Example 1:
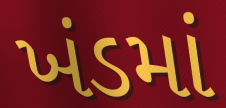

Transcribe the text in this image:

ખંડમાં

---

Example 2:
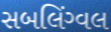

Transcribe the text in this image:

સબલિંગ્વલ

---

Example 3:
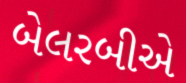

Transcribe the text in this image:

બેલરબીએ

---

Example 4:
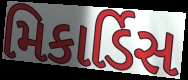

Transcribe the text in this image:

મિકાર્ડિસ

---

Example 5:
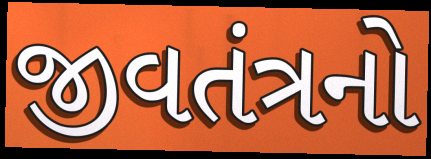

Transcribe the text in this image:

જીવતંત્રનો